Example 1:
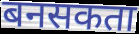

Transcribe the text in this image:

बनसकता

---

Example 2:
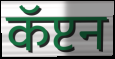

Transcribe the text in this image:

कॅप्टन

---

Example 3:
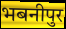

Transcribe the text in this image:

भबनीपुर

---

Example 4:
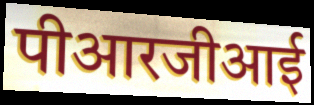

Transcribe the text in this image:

पीआरजीआई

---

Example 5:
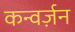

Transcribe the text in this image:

कन्वर्ज़न